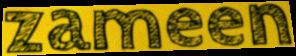
zameen